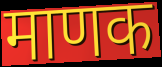
माणक